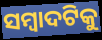
ସମ୍ୱାଦଟିକୁ